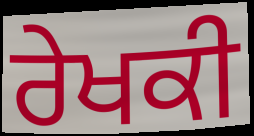
ਰੇਖਕੀ